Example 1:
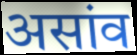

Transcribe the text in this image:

असांव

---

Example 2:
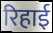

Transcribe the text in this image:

रिहाई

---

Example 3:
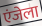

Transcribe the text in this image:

एंजेला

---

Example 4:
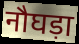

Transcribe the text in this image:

नौघड़ा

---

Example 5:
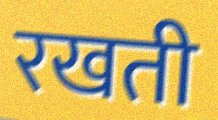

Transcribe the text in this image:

रखती